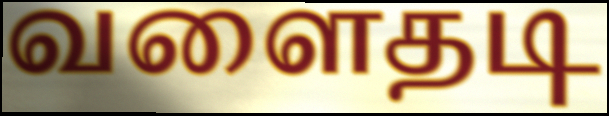
வளைதடி